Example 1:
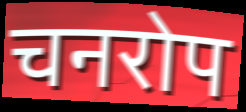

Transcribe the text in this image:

चनरोप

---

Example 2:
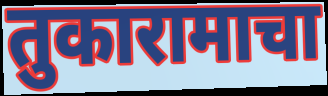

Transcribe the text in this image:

तुकारामाचा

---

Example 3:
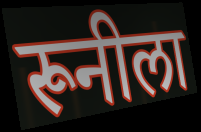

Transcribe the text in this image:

रूनीला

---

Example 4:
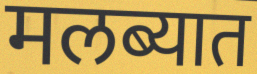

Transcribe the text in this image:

मलब्यात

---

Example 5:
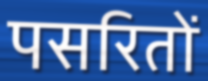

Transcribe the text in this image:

पसरितों